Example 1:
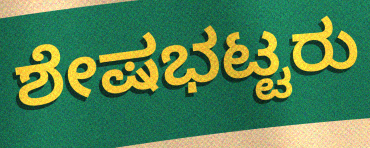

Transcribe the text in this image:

ಶೇಷಭಟ್ಟರು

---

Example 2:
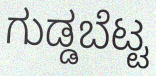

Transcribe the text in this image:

ಗುಡ್ಡಬೆಟ್ಟ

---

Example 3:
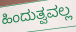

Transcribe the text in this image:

ಹಿಂದುತ್ವವಲ್ಲ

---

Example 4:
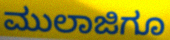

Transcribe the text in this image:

ಮುಲಾಜಿಗೂ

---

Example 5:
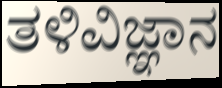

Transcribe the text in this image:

ತಳಿವಿಜ್ಞಾನ